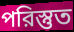
পরিস্তুত